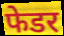
फेडर